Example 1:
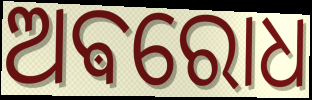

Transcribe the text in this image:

ଅଵରୋଧ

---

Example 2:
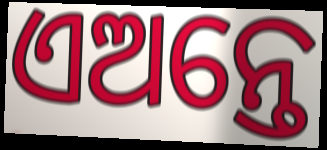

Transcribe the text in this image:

ଏଅନ୍ତେ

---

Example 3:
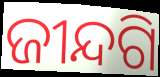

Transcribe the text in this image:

ଜୀନ୍ଦଗି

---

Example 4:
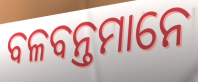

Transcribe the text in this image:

ବଳବନ୍ତମାନେ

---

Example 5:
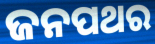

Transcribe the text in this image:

ଜନପଥର